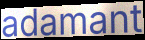
adamant